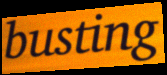
busting